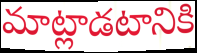
మాట్లాడటానికి